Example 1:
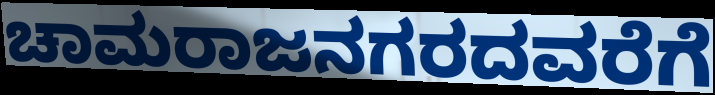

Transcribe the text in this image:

ಚಾಮರಾಜನಗರದವರೆಗೆ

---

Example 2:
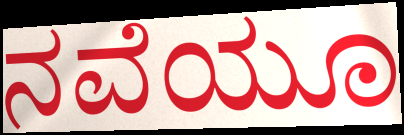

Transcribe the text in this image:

ನವೆಯೂ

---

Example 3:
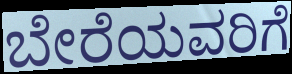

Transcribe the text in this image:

ಬೇರೆಯವರಿಗೆ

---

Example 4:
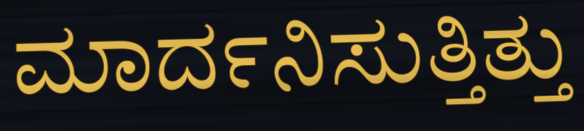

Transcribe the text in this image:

ಮಾರ್ದನಿಸುತ್ತಿತ್ತು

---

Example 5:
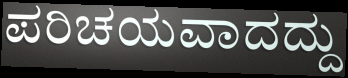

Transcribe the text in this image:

ಪರಿಚಯವಾದದ್ದು